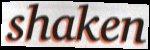
shaken